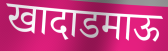
खादाडमाऊ